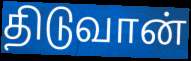
திடுவான்